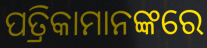
ପତ୍ରିକାମାନଙ୍କରେ